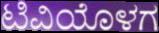
ಟಿವಿಯೊಳಗ